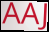
AAJ